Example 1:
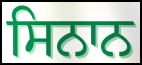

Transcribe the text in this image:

ਸਿਨਾਨ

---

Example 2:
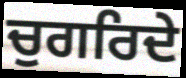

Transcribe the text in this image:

ਚੁਗਰਿਦੇ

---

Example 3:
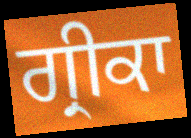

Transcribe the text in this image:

ਗ੍ਰੀਕਾ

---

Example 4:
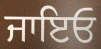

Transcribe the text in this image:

ਜਾਇਓ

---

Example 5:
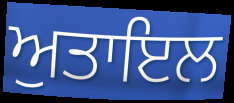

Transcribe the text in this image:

ਅੁਤਾਇਲ